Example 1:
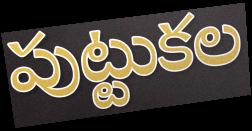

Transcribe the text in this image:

పుట్టుకల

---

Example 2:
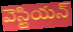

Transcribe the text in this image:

వెస్టియన్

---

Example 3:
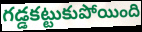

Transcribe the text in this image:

గడ్డకట్టుకుపోయింది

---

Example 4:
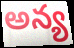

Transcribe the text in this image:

అన్య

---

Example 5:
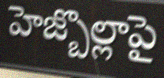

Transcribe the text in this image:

హెజ్బొల్లాపై